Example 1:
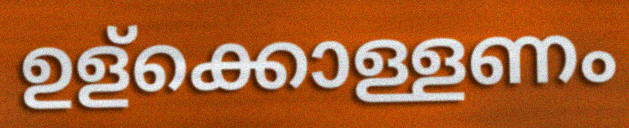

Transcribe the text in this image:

ഉള്ക്കൊള്ളണം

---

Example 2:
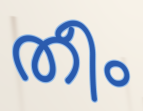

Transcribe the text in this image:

തീം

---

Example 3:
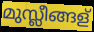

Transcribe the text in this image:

മുസ്ലീങ്ങള്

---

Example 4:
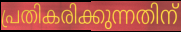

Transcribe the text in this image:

പ്രതികരിക്കുന്നതിന്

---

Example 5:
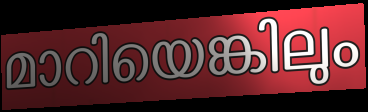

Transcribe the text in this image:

മാറിയെങ്കിലും